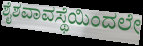
ಶೈಶವಾವಸ್ಥೆಯಿಂದಲೇ